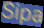
Sipa